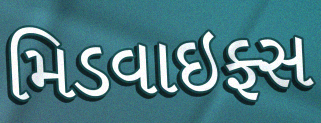
મિડવાઇફ્સ